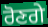
ਰੋਣਗੇ